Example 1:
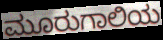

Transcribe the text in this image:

ಮೂರುಗಾಲಿಯ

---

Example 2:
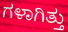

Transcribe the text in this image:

ಗಳಾಗಿತ್ತು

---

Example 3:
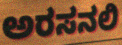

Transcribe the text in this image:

ಅರಸನಲಿ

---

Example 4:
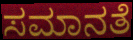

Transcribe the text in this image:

ಸಮಾನತೆ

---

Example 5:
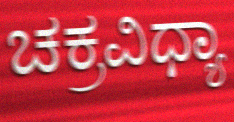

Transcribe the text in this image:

ಚಕ್ರವಿಧ್ಯಾ